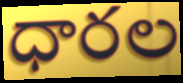
ధారల